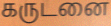
கருடனை